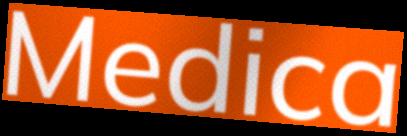
Medica